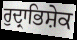
ਰੁਦ੍ਰਾਭਿਸ਼ੇਕ